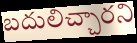
బదులిచ్చారని